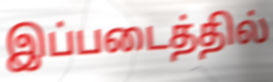
இப்படைத்தில்